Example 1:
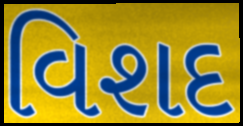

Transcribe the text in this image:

વિશદ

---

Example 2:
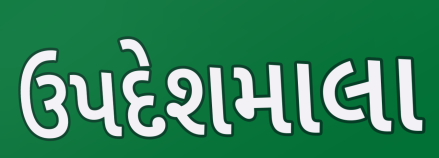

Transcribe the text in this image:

ઉપદેશમાલા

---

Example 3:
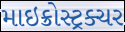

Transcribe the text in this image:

માઇક્રોસ્ટ્રક્ચર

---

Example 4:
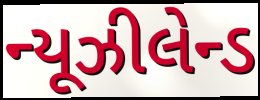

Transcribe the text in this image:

ન્યૂઝીલેન્ડ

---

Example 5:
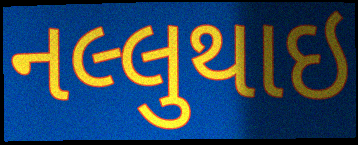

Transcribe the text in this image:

નલ્લુથાઇ